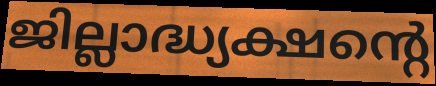
ജില്ലാദ്ധ്യക്ഷന്റെ